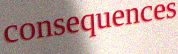
consequences